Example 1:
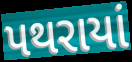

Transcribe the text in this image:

પથરાયાં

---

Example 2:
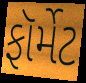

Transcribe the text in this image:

ફૉર્મેટ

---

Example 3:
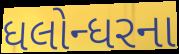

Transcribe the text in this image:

ધલોન્ધરના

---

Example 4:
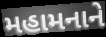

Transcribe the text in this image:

મહામનાને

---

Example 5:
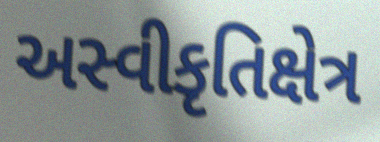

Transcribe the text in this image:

અસ્વીકૃતિક્ષેત્ર